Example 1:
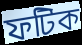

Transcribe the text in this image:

ফটিক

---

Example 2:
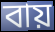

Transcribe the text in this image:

বায়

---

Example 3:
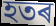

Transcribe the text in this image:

হতৰ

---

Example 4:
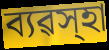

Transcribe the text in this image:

ব্যৱস্হা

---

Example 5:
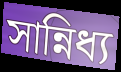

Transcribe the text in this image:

সান্নিধ্য